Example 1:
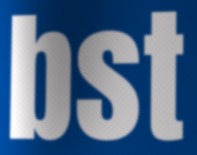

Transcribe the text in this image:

bst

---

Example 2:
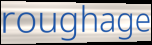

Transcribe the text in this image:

roughage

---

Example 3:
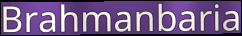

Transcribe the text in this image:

Brahmanbaria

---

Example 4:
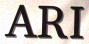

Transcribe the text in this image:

ARI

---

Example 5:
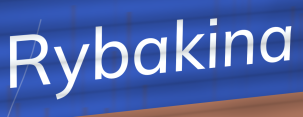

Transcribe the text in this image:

Rybakina